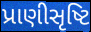
પ્રાણીસૃષ્ટિ